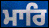
ਮਾਰਿ